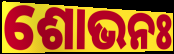
ଶୋଭନଃ